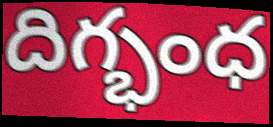
దిగ్భంధ